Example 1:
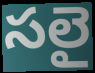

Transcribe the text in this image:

సలై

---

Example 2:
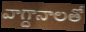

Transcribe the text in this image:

వాగ్దానాలతో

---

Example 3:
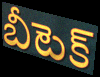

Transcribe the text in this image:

బీటెక్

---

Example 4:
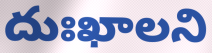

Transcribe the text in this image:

దుఃఖాలని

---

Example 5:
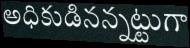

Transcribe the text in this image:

అధికుడినన్నట్టుగా